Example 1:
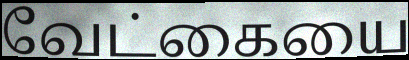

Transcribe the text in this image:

வேட்கையை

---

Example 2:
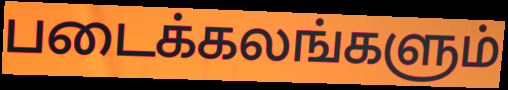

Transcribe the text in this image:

படைக்கலங்களும்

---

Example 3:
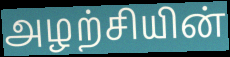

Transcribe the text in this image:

அழற்சியின்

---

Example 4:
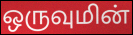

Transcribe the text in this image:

ஒருவுமின்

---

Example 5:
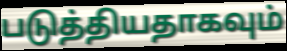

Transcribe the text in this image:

படுத்தியதாகவும்